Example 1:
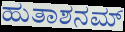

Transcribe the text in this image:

ಹುತಾಶನಮ್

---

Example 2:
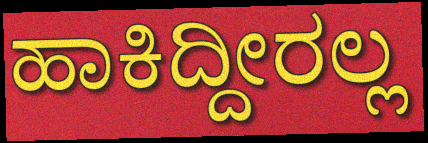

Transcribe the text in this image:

ಹಾಕಿದ್ದೀರಲ್ಲ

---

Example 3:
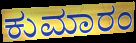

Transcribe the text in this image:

ಕುಮಾರಂ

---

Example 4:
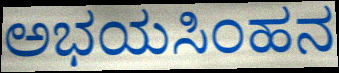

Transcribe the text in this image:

ಅಭಯಸಿಂಹನ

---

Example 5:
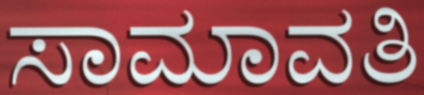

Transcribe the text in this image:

ಸಾಮಾವತಿ